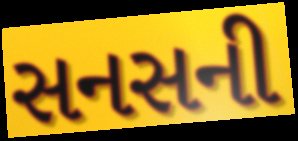
સનસની